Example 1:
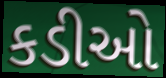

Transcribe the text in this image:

કડીઓ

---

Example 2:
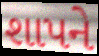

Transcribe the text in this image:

શાપને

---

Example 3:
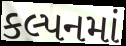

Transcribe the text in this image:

કલ્પનમાં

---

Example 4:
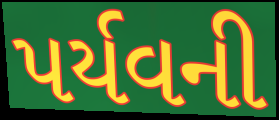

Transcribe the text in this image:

પર્યવની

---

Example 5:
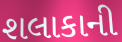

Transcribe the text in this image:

શલાકાની